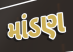
માંડણ